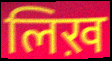
लिख़